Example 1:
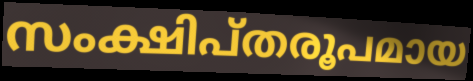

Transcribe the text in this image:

സംക്ഷിപ്തരൂപമായ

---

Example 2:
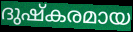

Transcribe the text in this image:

ദുഷ്കരമായ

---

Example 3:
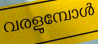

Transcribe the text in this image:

വരളുമ്പോൾ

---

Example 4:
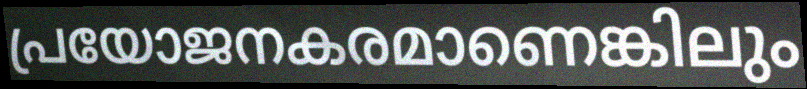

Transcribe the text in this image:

പ്രയോജനകരമാണെങ്കിലും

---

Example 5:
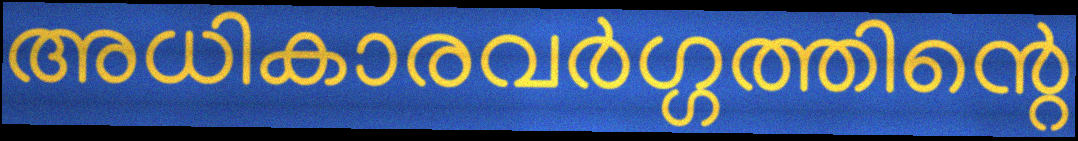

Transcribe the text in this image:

അധികാരവർഗ്ഗത്തിന്റെ